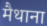
मैथाना